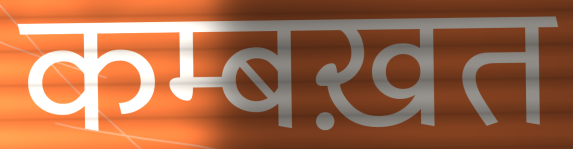
कम्बख़त